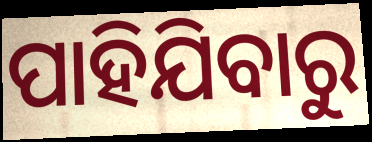
ପାହିଯିବାରୁ